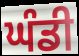
ਘੰਡੀ